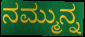
ನಮ್ಮುನ್ನ